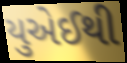
યુએઈથી